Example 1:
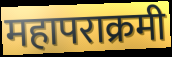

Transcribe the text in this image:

महापराक्रमी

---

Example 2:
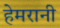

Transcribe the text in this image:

हेमरानी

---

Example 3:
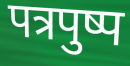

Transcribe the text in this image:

पत्रपुष्प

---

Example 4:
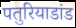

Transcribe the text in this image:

पतुरियाडांड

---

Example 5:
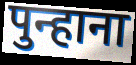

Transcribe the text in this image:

पुन्हाना